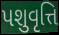
પશુવૃત્તિ